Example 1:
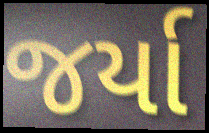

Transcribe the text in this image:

જર્યા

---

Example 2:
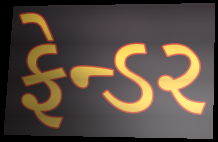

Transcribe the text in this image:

ફેન્ડર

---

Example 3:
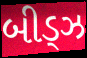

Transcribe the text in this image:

બીડ્ઝ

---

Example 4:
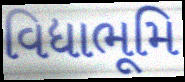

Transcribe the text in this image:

વિદ્યાભૂમિ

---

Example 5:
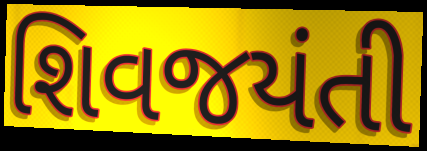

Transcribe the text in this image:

શિવજયંતી